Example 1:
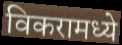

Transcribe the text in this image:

विकरामध्ये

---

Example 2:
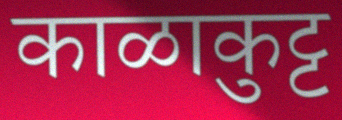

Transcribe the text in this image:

काळाकुट्ट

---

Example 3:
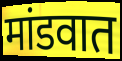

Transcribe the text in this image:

मांडवात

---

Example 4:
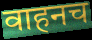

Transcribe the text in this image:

वाहनच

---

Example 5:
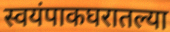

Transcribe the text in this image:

स्वयंपाकघरातल्या